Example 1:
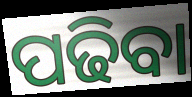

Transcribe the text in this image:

ପଢିବା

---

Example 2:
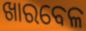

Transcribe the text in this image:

ଖାରବେଳ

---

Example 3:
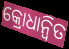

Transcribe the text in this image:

କ୍ରୋଧାନ୍ୱିତ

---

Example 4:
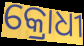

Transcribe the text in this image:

କ୍ରୋଧୀ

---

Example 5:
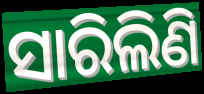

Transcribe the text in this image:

ସାରିଲିଣି